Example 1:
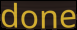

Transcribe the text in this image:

done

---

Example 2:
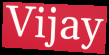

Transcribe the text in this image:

Vijay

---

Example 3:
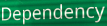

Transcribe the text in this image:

Dependency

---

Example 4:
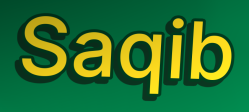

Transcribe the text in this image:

Saqib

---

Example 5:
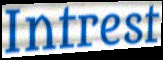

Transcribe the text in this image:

Intrest